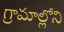
గ్రామాల్లోని